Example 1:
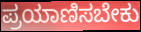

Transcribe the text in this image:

ಪ್ರಯಾಣಿಸಬೇಕು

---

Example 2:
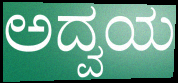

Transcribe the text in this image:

ಅದ್ವಯ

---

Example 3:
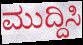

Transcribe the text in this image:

ಮುದ್ದಿಸಿ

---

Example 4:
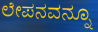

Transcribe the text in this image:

ಲೇಪನವನ್ನೂ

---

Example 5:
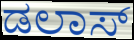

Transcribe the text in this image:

ಡಲಾಸ್